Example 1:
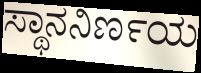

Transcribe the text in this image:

ಸ್ಥಾನನಿರ್ಣಯ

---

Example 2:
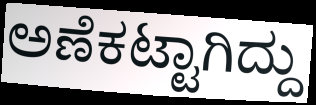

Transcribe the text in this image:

ಅಣೆಕಟ್ಟಾಗಿದ್ದು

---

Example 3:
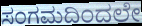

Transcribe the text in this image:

ಸಂಗಮದಿಂದಲೇ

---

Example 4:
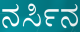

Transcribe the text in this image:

ನರ್ಸಿನ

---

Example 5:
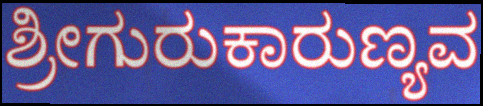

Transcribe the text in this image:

ಶ್ರೀಗುರುಕಾರುಣ್ಯವ